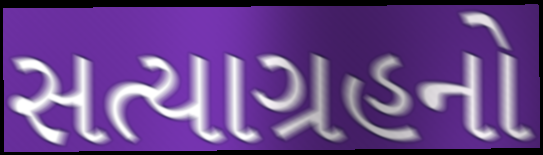
સત્યાગ્રહનો